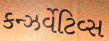
કન્ઝર્વેટિવ્સ